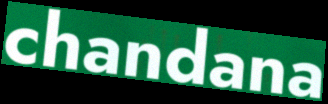
chandana